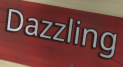
Dazzling